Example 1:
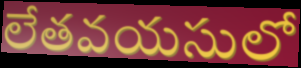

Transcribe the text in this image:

లేతవయసులో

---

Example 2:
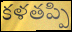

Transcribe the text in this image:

కళతప్పి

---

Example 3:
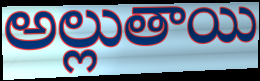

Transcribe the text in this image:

అల్లుతాయి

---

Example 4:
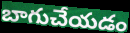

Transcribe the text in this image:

బాగుచేయడం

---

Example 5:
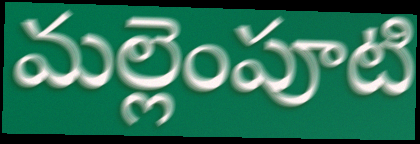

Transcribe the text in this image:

మల్లెంపూటి